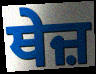
ਥੇਜ਼